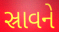
સ્રાવને